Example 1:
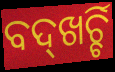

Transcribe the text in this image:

ବଦ୍‌ଖର୍ଚ୍ଚି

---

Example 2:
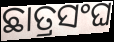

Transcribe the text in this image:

ଛାତ୍ରସଂଘ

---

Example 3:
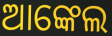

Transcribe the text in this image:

ଆଙ୍କେଲ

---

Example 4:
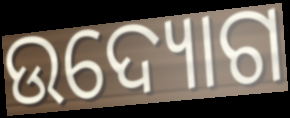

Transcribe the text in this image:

ଉଦ୍ୟୋଗ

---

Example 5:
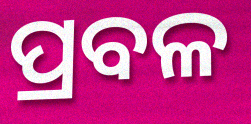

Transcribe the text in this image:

ପ୍ରବଳ